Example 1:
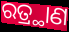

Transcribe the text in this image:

ରତ୍ର୍ଥାଣ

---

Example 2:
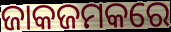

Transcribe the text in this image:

ଜାକଜମକରେ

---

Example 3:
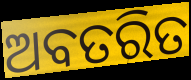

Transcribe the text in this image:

ଅବତରିତ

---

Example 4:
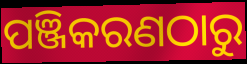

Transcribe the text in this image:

ପଞ୍ଜିକରଣଠାରୁ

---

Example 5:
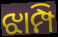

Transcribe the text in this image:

ଝାମ୍ପି